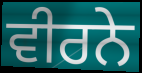
ਵੀਰਨੇ